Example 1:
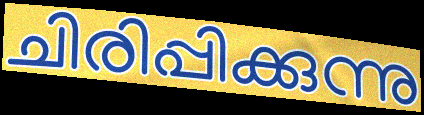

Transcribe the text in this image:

ചിരിപ്പിക്കുന്നു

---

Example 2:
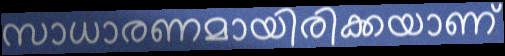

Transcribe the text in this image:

സാധാരണമായിരിക്കയാണ്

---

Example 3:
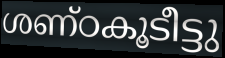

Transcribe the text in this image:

ശണ്ഠകൂടീട്ടു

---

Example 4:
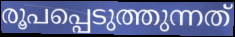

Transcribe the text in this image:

രൂപപ്പെടുത്തുന്നത്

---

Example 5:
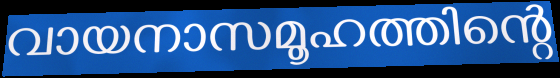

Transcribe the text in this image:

വായനാസമൂഹത്തിന്റെ